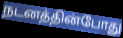
நடனத்தின்போது